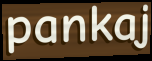
pankaj